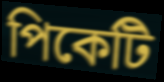
পিকেটি